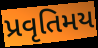
પ્રવૃતિમય